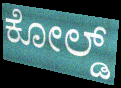
ಕೋಲ್ಡ್